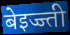
बेइज्ज्ती